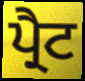
ਪ੍ਰੈਟ